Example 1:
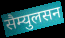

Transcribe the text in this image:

सैम्युलसन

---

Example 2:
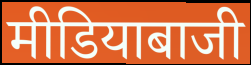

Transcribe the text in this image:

मीडियाबाजी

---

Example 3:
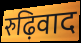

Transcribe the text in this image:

रुढ़िवाद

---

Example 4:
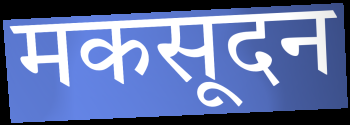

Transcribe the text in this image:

मकसूदन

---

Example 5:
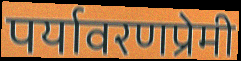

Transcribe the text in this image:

पर्यावरणप्रेमी